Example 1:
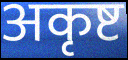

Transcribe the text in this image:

अकृष्ट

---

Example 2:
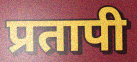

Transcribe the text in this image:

प्रतापी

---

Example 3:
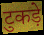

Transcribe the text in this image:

टुकड़े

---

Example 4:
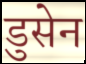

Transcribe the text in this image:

डुसेन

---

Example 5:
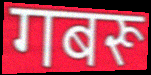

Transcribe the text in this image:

गबरू